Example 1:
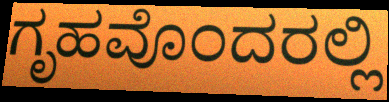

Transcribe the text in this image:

ಗೃಹವೊಂದರಲ್ಲಿ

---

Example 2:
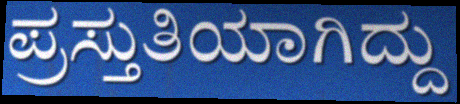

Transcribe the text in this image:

ಪ್ರಸ್ತುತಿಯಾಗಿದ್ದು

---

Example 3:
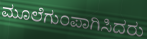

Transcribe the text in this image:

ಮೂಲೆಗುಂಪಾಗಿಸಿದರು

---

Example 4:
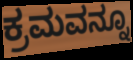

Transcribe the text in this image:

ಕ್ರಮವನ್ನೂ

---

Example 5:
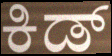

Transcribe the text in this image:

ಕಿಡ್